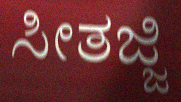
ಸೀತಜ್ಜಿ